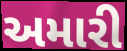
અમારી